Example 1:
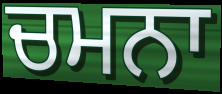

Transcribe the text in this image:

ਚਮਨਾ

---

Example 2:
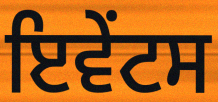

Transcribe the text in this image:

ਇਵੇੰਟਸ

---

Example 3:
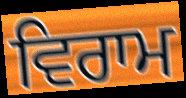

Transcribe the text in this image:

ਵਿਰਾਮ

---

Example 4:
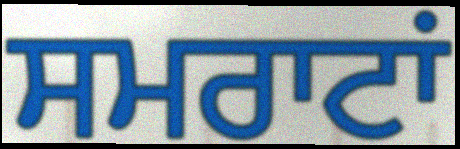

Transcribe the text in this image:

ਸਮਰਾਟਾਂ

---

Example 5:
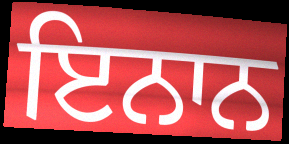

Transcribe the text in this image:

ਇਨਾਨ